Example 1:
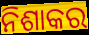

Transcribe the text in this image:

ନିଶାକର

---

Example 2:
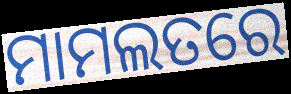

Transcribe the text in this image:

ମାମଲତରେ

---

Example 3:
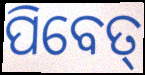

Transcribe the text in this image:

ପିବେତ୍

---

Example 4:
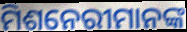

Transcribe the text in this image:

ମିଶନେରୀମାନଙ୍କ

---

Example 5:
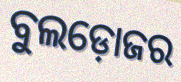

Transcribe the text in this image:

ବୁଲଡ଼ୋଜର